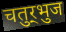
चतुर्भुज